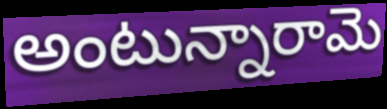
అంటున్నారామె